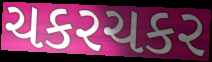
ચકરચકર